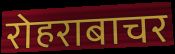
रोहराबाचर